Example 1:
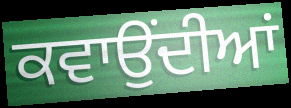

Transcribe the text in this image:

ਕਵਾਉਂਦੀਆਂ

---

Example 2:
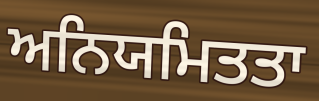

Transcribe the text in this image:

ਅਨਿਯਮਿਤਤਾ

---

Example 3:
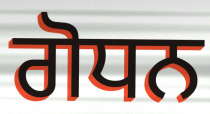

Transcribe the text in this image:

ਗੋਧਨ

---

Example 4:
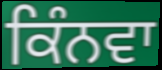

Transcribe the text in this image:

ਕਿੰਨਵਾ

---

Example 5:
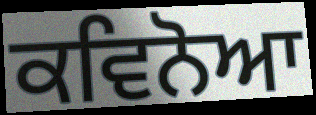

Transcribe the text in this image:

ਕਵਿਨੋਆ